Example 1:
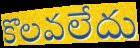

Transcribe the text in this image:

కొలవలేదు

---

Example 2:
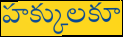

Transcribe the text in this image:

హక్కులకూ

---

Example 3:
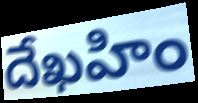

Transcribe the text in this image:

దేఖహిం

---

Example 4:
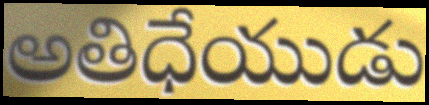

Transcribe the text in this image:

అతిధేయుడు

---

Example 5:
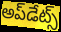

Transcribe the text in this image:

అప్‌డేట్స్